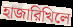
হাজারিখিলে